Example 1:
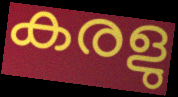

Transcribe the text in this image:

കരളു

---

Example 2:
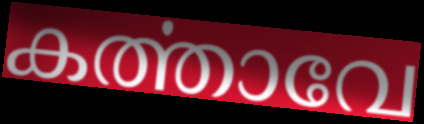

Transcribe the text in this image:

കൎത്താവേ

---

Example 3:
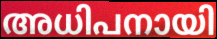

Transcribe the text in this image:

അധിപനായി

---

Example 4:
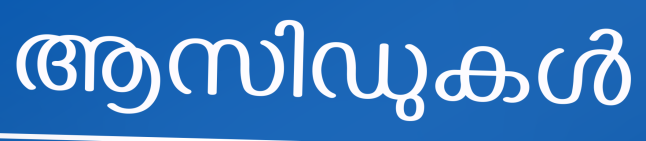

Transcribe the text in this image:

ആസിഡുകൾ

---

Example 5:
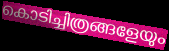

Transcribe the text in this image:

കൊടിച്ചിത്രങ്ങളേയും